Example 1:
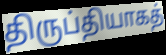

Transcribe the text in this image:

திருப்தியாகத்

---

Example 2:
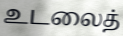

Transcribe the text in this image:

உடலைத்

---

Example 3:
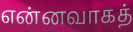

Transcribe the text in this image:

என்னவாகத்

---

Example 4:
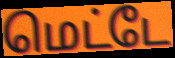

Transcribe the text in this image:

மெட்டே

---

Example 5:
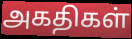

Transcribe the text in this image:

அகதிகள்